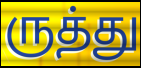
ருத்து